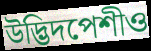
উদ্ভিদপেশীও